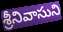
శ్రీనివాసుని